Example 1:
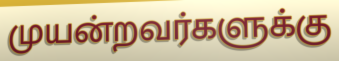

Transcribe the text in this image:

முயன்றவர்களுக்கு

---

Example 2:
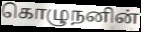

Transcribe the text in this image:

கொழுநனின்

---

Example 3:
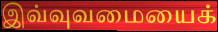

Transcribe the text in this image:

இவ்வுவமையைக்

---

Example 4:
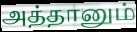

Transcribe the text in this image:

அத்தானும்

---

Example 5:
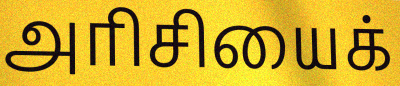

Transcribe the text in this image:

அரிசியைக்